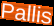
Pallis